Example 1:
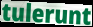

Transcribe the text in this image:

tulerunt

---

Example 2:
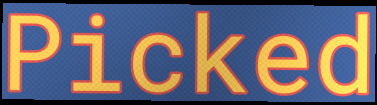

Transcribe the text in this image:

Picked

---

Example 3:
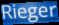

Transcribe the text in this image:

Rieger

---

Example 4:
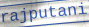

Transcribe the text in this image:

rajputani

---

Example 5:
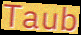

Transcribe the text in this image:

Taub